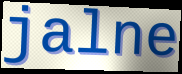
jalne